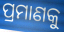
ପ୍ରମାଣକୁ